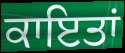
ਕਾਇਤਾਂ